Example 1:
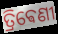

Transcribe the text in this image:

ତ୍ରିଵେଣୀ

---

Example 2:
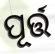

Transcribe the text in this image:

ପୂର୍ତ୍ତ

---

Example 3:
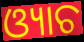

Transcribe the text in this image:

ଓ୍ୟାଚ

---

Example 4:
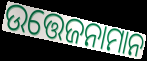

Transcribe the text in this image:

ଉତ୍ତେଜନାମାନ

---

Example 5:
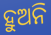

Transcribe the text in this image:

ହୁଅନି